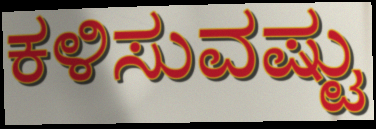
ಕಳಿಸುವಷ್ಟು